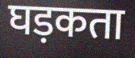
घड़कता